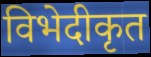
विभेदीकृत